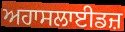
ਅਹਾਸਲਾਈਡਜ਼